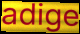
adige